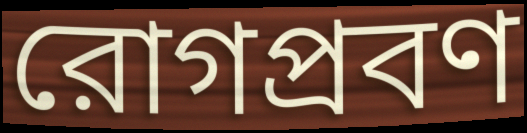
রোগপ্রবণ